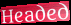
Headed